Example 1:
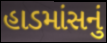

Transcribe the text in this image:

હાડમાંસનું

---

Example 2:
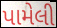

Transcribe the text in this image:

પામેલી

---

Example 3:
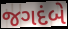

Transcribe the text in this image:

જગદંબે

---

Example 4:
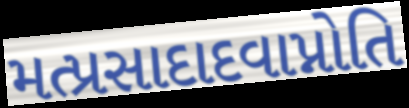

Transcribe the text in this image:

મત્પ્રસાદાદવાપ્નોતિ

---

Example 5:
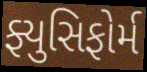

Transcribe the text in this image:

ફ્યુસિફોર્મ